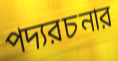
পদ্যরচনার